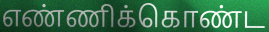
எண்ணிக்கொண்ட